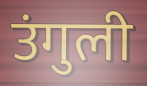
उंगुली